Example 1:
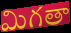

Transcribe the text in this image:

మిగతా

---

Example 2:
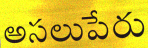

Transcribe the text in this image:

అసలుపేరు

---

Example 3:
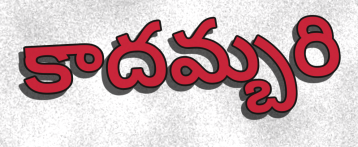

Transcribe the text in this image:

కాదమ్బరి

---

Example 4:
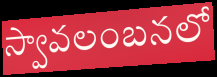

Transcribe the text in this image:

స్వావలంబనలో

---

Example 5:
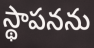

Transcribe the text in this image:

స్థాపనను